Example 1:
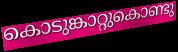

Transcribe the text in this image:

കൊടുങ്കാറ്റുകൊണ്ടു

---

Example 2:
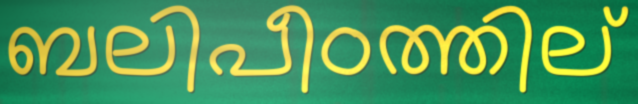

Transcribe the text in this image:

ബലിപീഠത്തില്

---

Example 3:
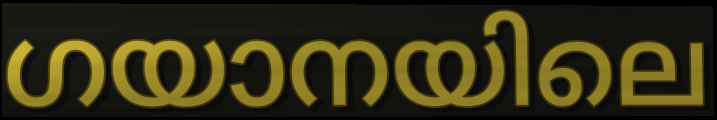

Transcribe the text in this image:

ഗയാനയിലെ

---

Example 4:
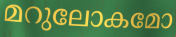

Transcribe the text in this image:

മറുലോകമോ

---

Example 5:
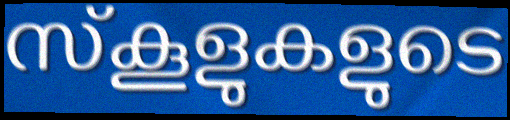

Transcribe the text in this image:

സ്‌കൂളുകളുടെ